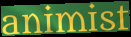
animist